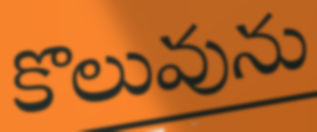
కొలువును